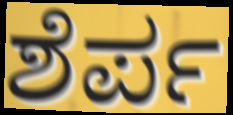
ಶೆರ್ಪ